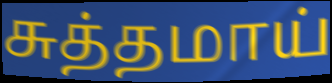
சுத்தமாய்